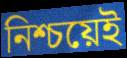
নিশ্চয়েই